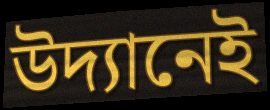
উদ্যানেই